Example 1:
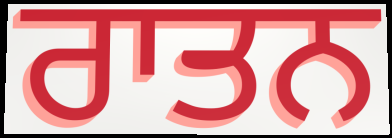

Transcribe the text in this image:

ਰਾਤਨ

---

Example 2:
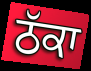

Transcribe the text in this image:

ਠੱਕਾ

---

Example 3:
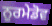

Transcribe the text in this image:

ਨੂਰਮੇਡੋਵ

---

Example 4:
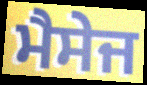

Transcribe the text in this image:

ਮੈਸੇਜ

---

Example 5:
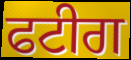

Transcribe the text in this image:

ਫਟੀਗ